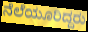
ನೆಲೆಯೂರಿದ್ದರು